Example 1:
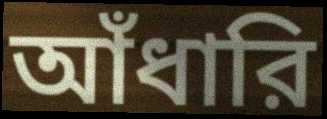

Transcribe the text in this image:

আঁধারি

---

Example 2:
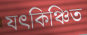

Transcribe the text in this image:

যৎকিঞ্চিত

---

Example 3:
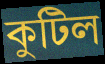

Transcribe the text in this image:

কুটিল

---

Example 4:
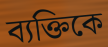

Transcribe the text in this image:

ব্যক্তিকে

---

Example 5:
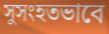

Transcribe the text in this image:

সুসংহতভাবে